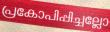
പ്രകോപിപ്പിച്ചല്ലോ